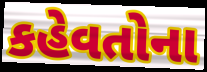
કહેવતોના